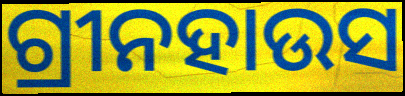
ଗ୍ରୀନହାଉସ